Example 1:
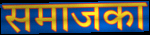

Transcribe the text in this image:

समाजका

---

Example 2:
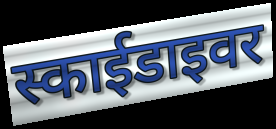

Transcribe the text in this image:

स्काईडाइवर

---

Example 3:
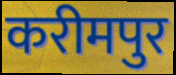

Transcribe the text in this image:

करीमपुर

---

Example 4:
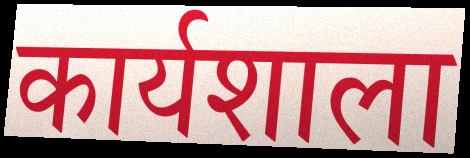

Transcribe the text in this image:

कार्यशाला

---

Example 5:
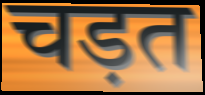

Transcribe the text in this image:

चड़त